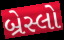
બ્રેસ્લો